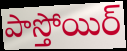
పాస్తోయిర్